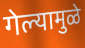
गेल्यामुळे